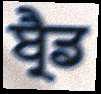
ਬ੍ਰੈਡ